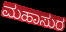
ಮಹಾಸುರ